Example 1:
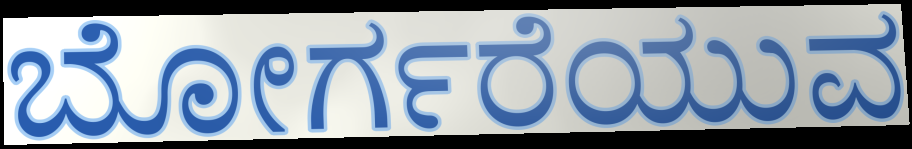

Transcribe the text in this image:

ಬೋರ್ಗರೆಯುವ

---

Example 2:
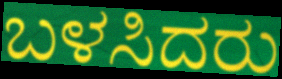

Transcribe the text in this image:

ಬಳಸಿದರು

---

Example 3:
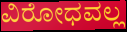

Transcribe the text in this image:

ವಿರೋಧವಲ್ಲ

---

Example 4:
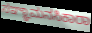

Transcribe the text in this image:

ಸಞ್ಞಾಮನಸಿಕಾರಾ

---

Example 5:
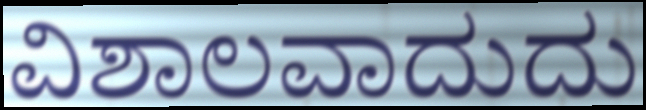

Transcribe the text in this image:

ವಿಶಾಲವಾದುದು